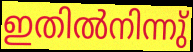
ഇതിൽനിന്നു്